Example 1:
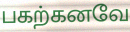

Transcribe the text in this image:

பகற்கனவே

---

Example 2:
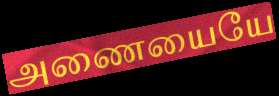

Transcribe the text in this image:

அணையையே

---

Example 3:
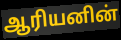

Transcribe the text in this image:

ஆரியனின்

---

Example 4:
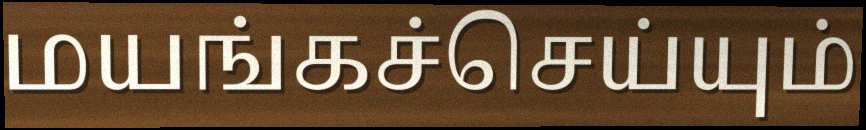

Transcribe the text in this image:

மயங்கச்செய்யும்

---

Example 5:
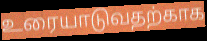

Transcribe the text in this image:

உரையாடுவதற்காக